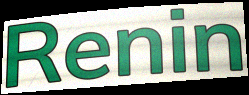
Renin